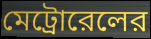
মেট্রোরেলের